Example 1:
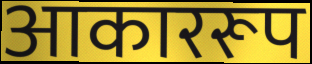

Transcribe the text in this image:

आकाररूप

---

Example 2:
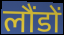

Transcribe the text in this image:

लौंडों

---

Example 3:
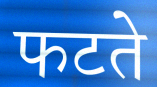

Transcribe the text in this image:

फटते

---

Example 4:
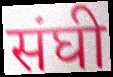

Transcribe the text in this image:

संघी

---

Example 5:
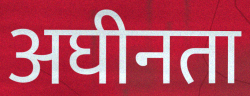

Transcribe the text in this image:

अघीनता